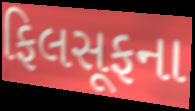
ફિલસૂફના